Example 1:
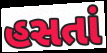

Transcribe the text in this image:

હસતાં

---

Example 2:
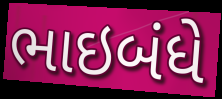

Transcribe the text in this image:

ભાઇબંધે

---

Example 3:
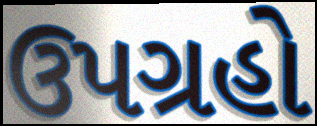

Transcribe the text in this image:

ઉપગ્રહો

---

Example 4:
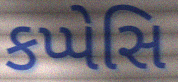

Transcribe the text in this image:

કપ્પેસિ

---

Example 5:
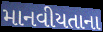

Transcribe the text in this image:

માનવીયતાના